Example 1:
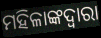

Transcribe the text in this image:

ମହିଳାଙ୍କଦ୍ୱାରା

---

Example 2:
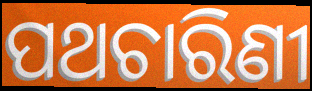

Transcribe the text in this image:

ପଥଚାରିଣୀ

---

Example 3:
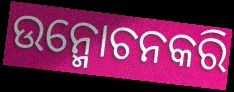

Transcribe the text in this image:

ଉନ୍ମୋଚନକରି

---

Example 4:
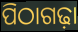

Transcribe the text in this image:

ପିଠାଗଢ଼ା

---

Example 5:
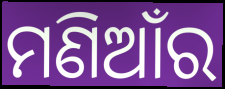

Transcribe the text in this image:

ମଣିଆଁର